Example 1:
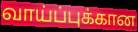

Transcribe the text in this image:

வாய்ப்புக்கான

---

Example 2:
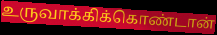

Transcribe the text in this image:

உருவாக்கிக்கொண்டான்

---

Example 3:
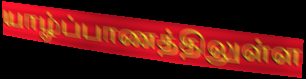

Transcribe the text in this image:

யாழ்ப்பாணத்திலுள்ள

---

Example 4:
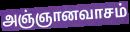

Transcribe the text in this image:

அஞ்ஞானவாசம்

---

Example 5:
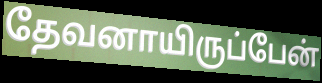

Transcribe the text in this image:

தேவனாயிருப்பேன்